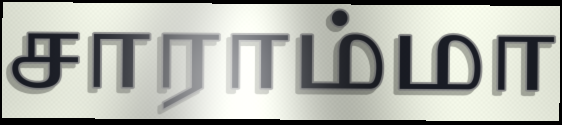
சாராம்மா